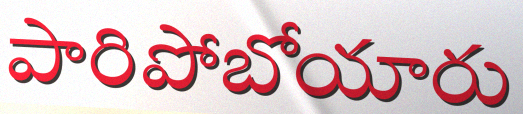
పారిపోబోయారు